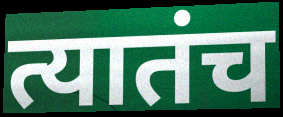
त्यातंच